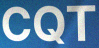
CQT